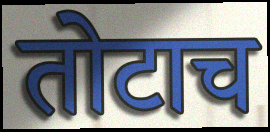
तोटाच